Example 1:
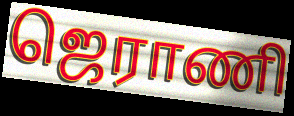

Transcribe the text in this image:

ஜெராணி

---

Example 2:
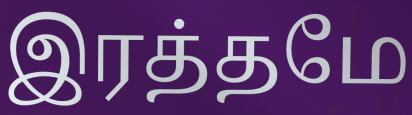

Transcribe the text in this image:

இரத்தமே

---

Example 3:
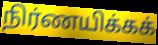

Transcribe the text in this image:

நிர்ணயிக்கக்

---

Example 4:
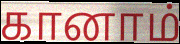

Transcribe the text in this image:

கானாம்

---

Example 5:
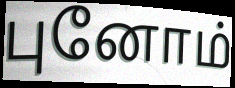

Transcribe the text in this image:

புனோம்